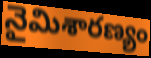
నైమిశారణ్యం